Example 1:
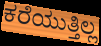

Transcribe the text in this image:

ಕರೆಯುತ್ತಿಲ್ಲ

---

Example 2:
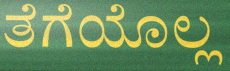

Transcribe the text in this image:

ತೆಗೆಯೊಲ್ಲ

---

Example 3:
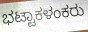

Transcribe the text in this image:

ಭಟ್ಟಾಕಳಂಕರು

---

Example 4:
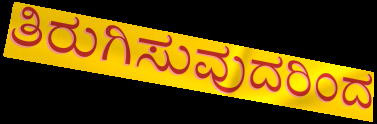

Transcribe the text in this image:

ತಿರುಗಿಸುವುದರಿಂದ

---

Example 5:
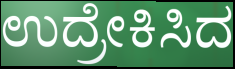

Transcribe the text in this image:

ಉದ್ರೇಕಿಸಿದ